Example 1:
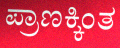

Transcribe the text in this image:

ಪ್ರಾಣಕ್ಕಿಂತ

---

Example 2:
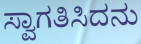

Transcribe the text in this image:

ಸ್ವಾಗತಿಸಿದನು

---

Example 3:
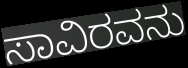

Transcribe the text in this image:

ಸಾವಿರವನು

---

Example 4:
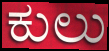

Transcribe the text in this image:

ಕುಲು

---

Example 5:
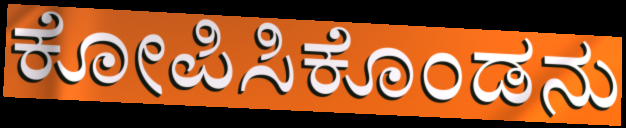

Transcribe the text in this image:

ಕೋಪಿಸಿಕೊಂಡನು